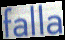
falla